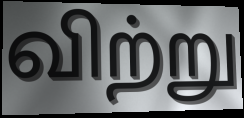
விற்று